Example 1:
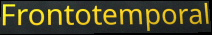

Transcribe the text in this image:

Frontotemporal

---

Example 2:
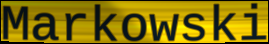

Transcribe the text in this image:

Markowski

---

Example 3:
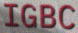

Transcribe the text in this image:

IGBC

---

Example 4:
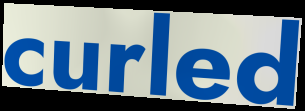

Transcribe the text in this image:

curled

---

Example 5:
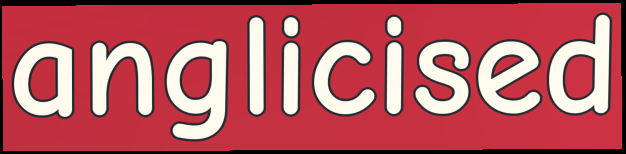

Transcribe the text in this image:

anglicised